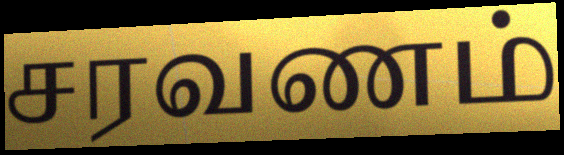
சரவணம்